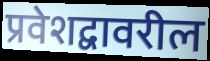
प्रवेशद्वावरील